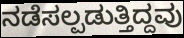
ನಡೆಸಲ್ಪಡುತ್ತಿದ್ದವು